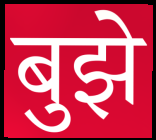
बुझे